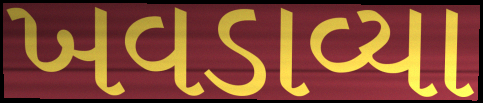
ખવડાવ્યા